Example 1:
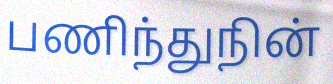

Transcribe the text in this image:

பணிந்துநின்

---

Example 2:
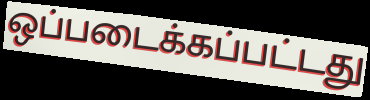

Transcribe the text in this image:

ஒப்படைக்கப்பட்டது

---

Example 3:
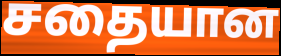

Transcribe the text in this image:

சதையான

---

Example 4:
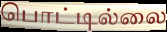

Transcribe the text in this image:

பொட்டில்லை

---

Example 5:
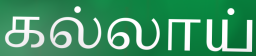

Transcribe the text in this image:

கல்லாய்